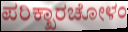
ಪರಿಕ್ಖಾರಚೋಳಂ